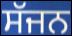
ਸੱਜਨ